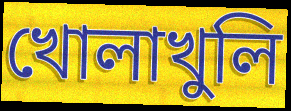
খোলাখুলি